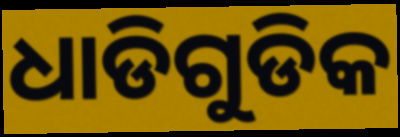
ଧାଡିଗୁଡିକ